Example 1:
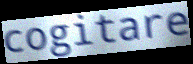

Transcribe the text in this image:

cogitare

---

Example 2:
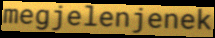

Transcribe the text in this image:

megjelenjenek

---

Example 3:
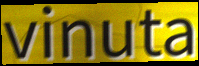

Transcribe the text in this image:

vinuta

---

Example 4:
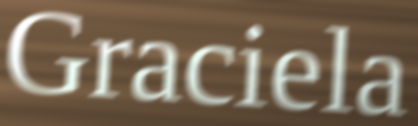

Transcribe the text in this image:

Graciela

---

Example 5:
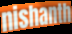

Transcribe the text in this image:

nishanth